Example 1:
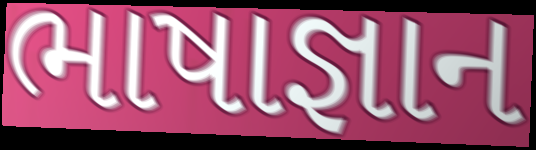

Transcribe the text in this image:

ભાષાજ્ઞાન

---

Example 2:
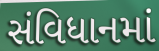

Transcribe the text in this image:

સંવિધાનમાં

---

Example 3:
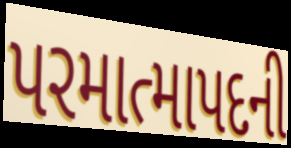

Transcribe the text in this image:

પરમાત્માપદની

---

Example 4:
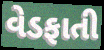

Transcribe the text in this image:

વેડફાતી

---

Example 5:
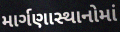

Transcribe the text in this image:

માર્ગણાસ્થાનોમાં